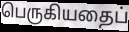
பெருகியதைப்